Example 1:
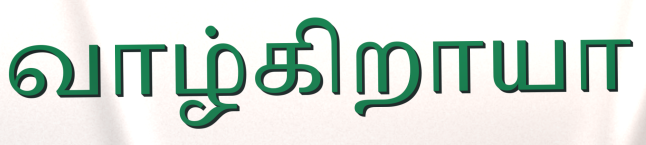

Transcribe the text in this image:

வாழ்கிறாயா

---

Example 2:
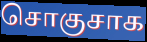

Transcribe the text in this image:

சொகுசாக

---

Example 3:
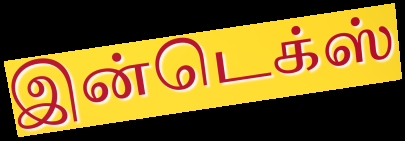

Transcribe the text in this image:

இன்டெக்ஸ்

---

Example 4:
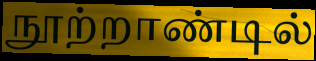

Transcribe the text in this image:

நூற்றாண்டில்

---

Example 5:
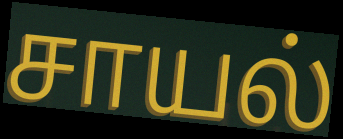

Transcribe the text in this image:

சாயல்